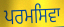
ਪਰਮਸਿਵਾ